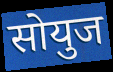
सोयुज